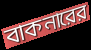
বাকনারের